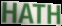
HATH